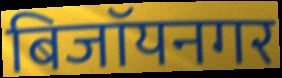
बिजॉयनगर